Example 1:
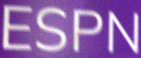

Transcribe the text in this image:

ESPN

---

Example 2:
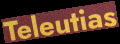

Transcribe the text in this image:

Teleutias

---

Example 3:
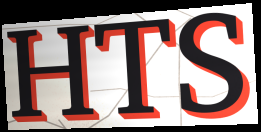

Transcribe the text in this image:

HTS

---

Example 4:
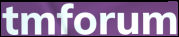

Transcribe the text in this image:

tmforum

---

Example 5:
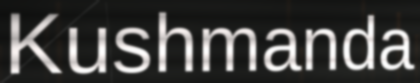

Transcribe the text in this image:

Kushmanda